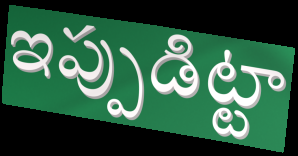
ఇప్పుడిట్టా